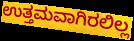
ಉತ್ತಮವಾಗಿರಲಿಲ್ಲ